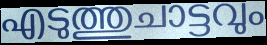
എടുത്തുചാട്ടവും